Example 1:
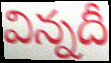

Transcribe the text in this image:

విన్నదీ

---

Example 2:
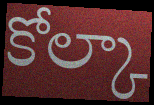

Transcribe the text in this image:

కోల్కా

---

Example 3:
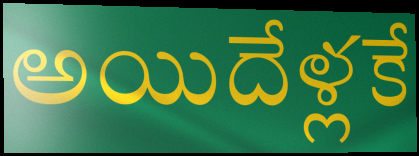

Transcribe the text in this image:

అయిదేళ్లకే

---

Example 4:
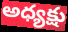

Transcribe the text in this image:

అధ్యక్షు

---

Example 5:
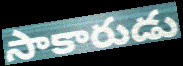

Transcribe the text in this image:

సాకారుడు